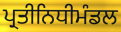
ਪ੍ਰਤੀਨਿਧੀਮੰਡਲ